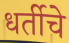
धर्तीचे